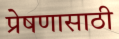
प्रेषणासाठी